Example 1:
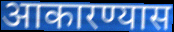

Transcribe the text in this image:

आकारण्यास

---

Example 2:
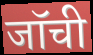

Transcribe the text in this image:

जॉची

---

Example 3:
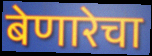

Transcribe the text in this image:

बेणारेचा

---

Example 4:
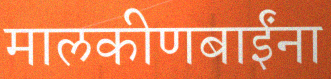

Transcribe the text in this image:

मालकीणबाईंना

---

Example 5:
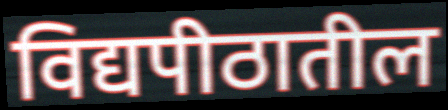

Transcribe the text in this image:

विद्यपीठातील